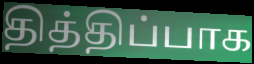
தித்திப்பாக